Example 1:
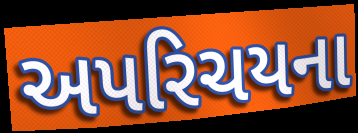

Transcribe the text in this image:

અપરિચયના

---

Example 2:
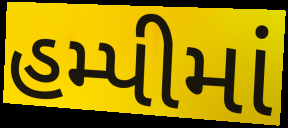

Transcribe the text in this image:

હમ્પીમાં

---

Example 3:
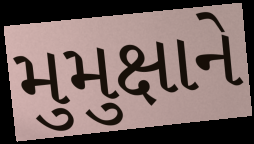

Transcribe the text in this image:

મુમુક્ષાને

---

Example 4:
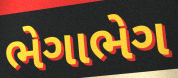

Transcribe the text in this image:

ભેગાભેગ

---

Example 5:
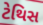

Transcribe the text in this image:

ટેથિસ